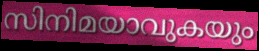
സിനിമയാവുകയും